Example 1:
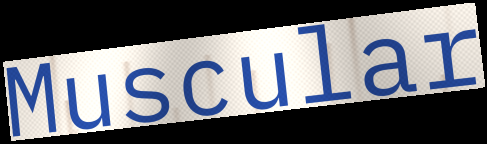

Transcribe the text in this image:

Muscular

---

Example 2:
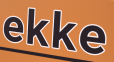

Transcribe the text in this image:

ekke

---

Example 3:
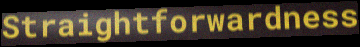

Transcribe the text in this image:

Straightforwardness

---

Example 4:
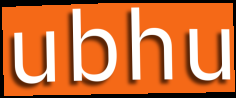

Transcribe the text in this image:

ubhu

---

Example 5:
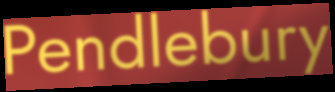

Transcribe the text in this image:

Pendlebury